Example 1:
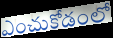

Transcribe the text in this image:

ఎంచుకోడంలో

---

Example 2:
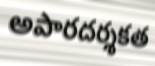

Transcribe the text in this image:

అపారదర్శకత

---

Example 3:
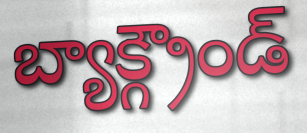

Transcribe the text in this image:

బ్యాక్గ్రౌండ్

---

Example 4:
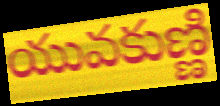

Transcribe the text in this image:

యువకుణ్ణి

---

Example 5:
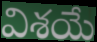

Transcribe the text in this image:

విశయే